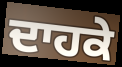
ਦਾਹਕੇ